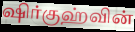
ஷிர்குஹ்வின்